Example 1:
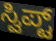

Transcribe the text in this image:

ಸ್ವಿಪ್ಟ್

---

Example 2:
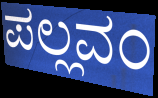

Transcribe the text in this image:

ಪಲ್ಲವಂ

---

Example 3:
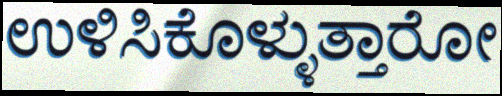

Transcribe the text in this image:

ಉಳಿಸಿಕೊಳ್ಳುತ್ತಾರೋ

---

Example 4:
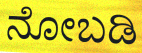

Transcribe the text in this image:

ನೋಬಡಿ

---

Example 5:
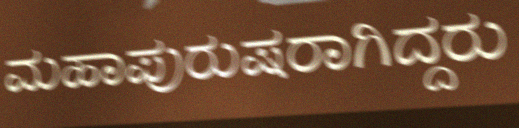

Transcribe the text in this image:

ಮಹಾಪುರುಷರಾಗಿದ್ದರು